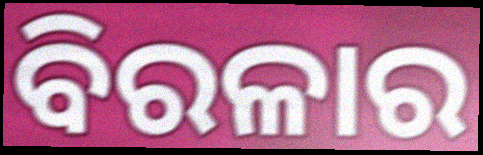
ବିରଳାର